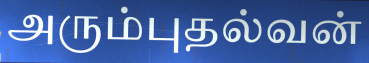
அரும்புதல்வன்